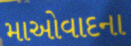
માઓવાદના